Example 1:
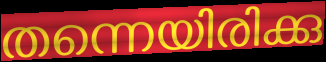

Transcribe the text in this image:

തന്നെയിരിക്കു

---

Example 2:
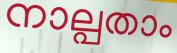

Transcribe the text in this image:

നാല്പതാം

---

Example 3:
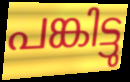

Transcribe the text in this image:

പങ്കിട്ടു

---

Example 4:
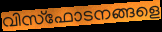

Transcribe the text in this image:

വിസ്ഫോടനങ്ങളെ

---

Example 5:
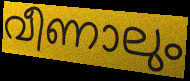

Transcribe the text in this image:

വീണാലും